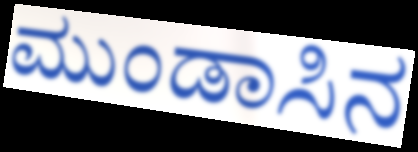
ಮುಂಡಾಸಿನ